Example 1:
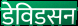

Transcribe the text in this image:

डेविडसन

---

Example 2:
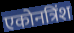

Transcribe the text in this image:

एकोनत्रिंश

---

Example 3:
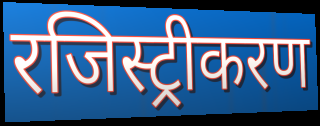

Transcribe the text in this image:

रजिस्ट्रीकरण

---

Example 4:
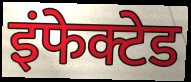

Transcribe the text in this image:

इंफेक्टेड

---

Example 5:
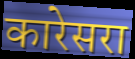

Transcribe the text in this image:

कारेसरा